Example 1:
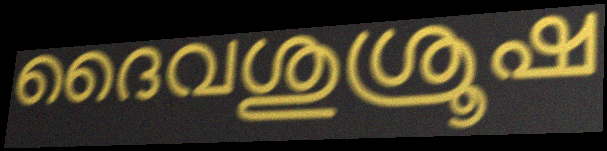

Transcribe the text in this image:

ദൈവശുശ്രൂഷ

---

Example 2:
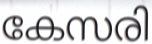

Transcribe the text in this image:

കേസരി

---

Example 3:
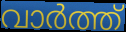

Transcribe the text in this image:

വാർത്ത്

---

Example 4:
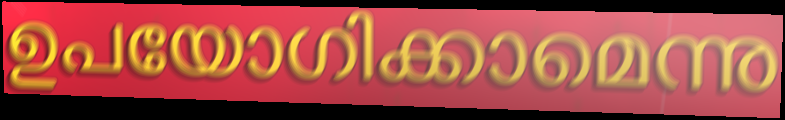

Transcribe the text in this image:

ഉപയോഗിക്കാമെന്നു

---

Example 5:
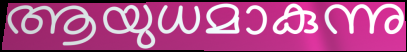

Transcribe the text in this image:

ആയുധമാകുന്നു